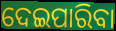
ଦେଇପାରିବା